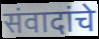
संवादांचे